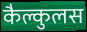
कैल्कुलस